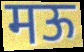
मऊ